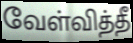
வேள்வித்தீ